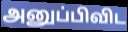
அனுப்பிவிட